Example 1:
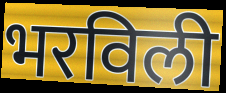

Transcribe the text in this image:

भरविली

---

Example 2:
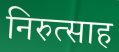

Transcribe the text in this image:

निरुत्साह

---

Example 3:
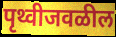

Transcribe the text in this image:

पृथ्वीजवळील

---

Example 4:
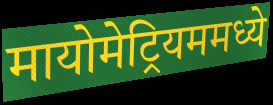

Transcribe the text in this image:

मायोमेट्रियममध्ये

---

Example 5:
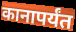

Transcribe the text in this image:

कानापर्यंत